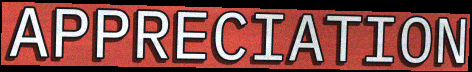
APPRECIATION